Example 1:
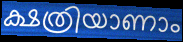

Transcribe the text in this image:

ക്ഷത്രിയാണാം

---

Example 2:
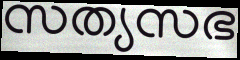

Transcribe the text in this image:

സത്യസഭ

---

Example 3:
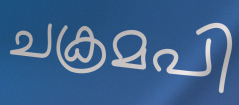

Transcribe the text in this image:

ചക്രമപി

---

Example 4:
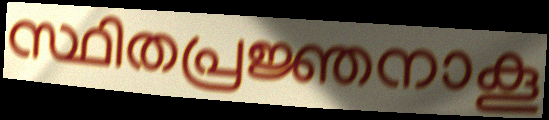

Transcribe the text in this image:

സ്ഥിതപ്രജ്ഞനാകൂ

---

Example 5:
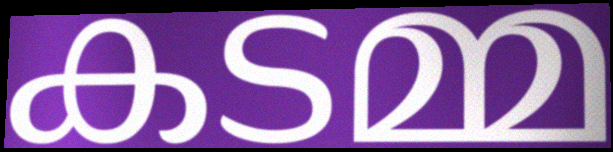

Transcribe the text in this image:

കടമ്മ